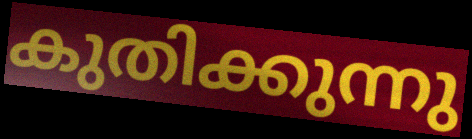
കുതിക്കുന്നു